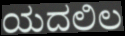
ಯದಲಿಲ